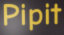
Pipit